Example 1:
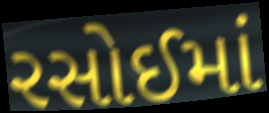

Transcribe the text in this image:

રસોઈમાં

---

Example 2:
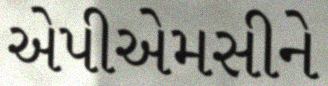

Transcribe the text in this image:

એપીએમસીને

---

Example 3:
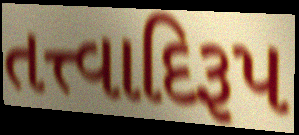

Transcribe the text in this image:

તત્ત્વાદિરૂપ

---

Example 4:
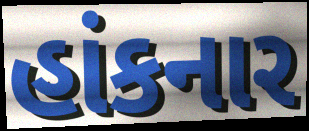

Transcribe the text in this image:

હાંકનાર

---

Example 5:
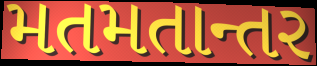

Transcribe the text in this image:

મતમતાન્તર